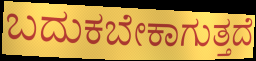
ಬದುಕಬೇಕಾಗುತ್ತದೆ